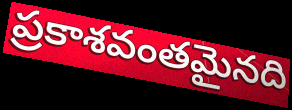
ప్రకాశవంతమైనది